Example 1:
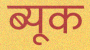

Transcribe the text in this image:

ब्यूक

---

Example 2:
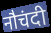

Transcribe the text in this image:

नौचंदी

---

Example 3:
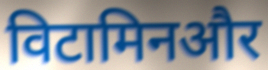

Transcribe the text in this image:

विटामिनऔर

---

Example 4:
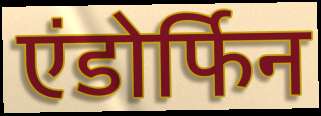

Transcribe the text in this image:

एंडोर्फिन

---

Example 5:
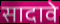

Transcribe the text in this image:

सादावे